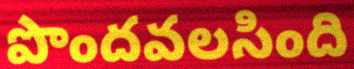
పొందవలసింది